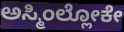
ಅಸ್ಮಿಂಲ್ಲೋಕೇ